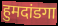
हुमदांडगा